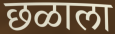
छळाला